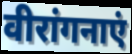
वीरांगनाएं